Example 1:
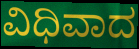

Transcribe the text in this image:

ವಿಧಿವಾದ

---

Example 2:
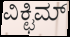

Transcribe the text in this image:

ವಿಕ್ಟಿಮ್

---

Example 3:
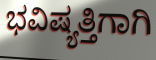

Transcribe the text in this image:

ಭವಿಷ್ಯತ್ತಿಗಾಗಿ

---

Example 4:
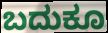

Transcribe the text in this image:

ಬದುಕೂ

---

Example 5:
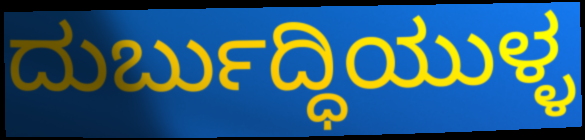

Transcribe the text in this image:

ದುರ್ಬುದ್ಧಿಯುಳ್ಳ